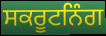
ਸਕਰੂਟਨਿੰਗ